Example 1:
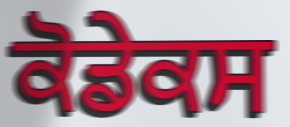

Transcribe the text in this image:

ਕੋਡੇਕਸ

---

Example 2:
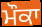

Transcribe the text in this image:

ਮੌਕਾ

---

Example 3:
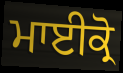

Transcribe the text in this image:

ਮਾਈਕ੍ਰੋ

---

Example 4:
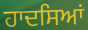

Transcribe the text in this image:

ਹਾਦਸਿਆਂ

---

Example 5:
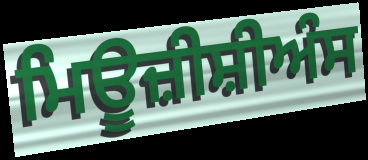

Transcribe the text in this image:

ਮਿਊਜ਼ੀਸ਼ੀਅੰਸ